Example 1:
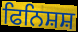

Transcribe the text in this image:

ਫਿਨਿਸ਼ਸ਼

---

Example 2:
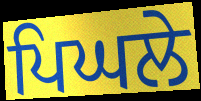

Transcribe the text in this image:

ਪਿਘਲੇ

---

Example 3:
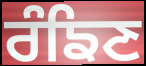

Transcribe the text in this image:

ਰੰਙਿਣ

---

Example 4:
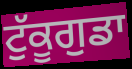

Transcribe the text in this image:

ਟੁੱਕੂਗੁਡਾ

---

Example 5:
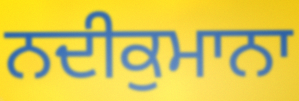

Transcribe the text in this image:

ਨਦੀਕੁਮਾਨਾ